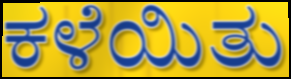
ಕಳೆಯಿತು